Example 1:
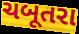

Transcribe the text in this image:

ચબૂતરા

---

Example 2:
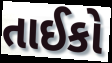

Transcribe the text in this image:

તાઈકો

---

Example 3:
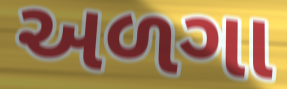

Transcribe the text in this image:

અળગા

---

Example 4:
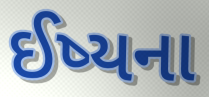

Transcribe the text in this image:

ઈષ્યના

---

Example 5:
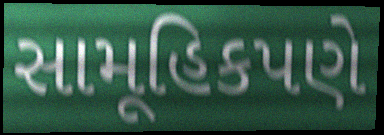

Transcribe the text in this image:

સામૂહિકપણે